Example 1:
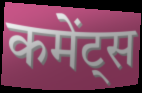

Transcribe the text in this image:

कमेंट्स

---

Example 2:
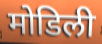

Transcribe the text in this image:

मोडिली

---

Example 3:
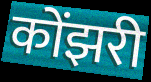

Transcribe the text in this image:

कोंझरी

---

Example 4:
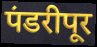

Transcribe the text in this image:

पंडरीपूर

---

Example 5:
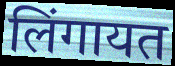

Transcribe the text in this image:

लिंगायत